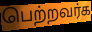
பெற்றவர்க